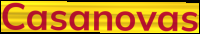
Casanovas